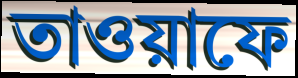
তাওয়াফে